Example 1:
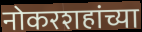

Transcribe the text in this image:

नोकरशहांच्या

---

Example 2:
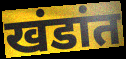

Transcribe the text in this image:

खंडांत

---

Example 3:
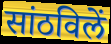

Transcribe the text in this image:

सांठविलें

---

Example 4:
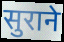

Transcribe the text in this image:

सुराने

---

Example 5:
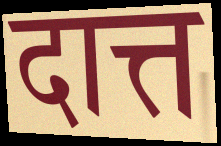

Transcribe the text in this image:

दात्त